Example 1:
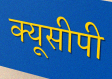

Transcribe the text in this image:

क्यूसीपी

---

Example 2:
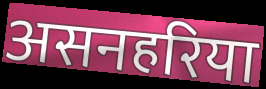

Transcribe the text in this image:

असनहरिया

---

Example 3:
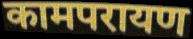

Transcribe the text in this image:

कामपरायण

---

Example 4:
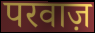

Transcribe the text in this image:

परवाज़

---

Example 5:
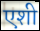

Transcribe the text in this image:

एशी